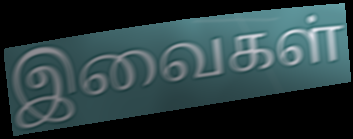
இவைகள்